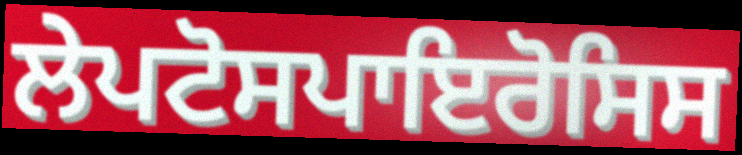
ਲੇਪਟੋਸਪਾਇਰੋਸਿਸ